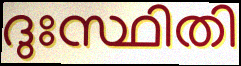
ദുഃസ്ഥിതി